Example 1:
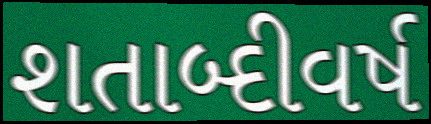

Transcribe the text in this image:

શતાબ્દીવર્ષ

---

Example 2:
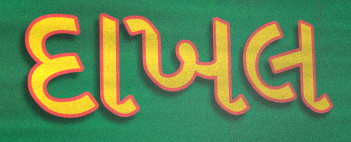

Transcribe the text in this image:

દાખલ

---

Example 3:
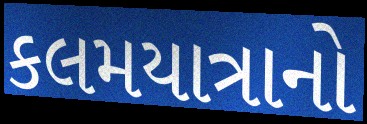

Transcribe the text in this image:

કલમયાત્રાનો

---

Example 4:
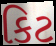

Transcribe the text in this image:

કિટ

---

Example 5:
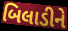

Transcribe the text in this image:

બિલાડીને